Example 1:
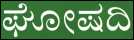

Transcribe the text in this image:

ಘೋಷದಿ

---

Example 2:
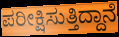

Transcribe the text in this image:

ಪರೀಕ್ಷಿಸುತ್ತಿದ್ದಾನೆ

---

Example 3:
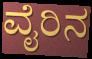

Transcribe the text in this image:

ವೈರಿನ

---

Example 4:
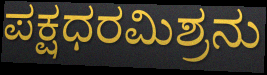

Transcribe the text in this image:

ಪಕ್ಷಧರಮಿಶ್ರನು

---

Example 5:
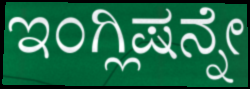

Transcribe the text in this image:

ಇಂಗ್ಲಿಷನ್ನೇ